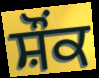
ਸ਼ੌਂਕ